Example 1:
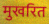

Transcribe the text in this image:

मुखरित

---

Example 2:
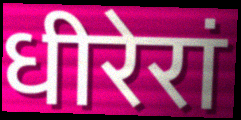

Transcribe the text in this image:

धीरेरां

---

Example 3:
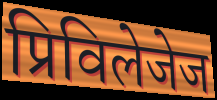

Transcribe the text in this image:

प्रिविलेजेज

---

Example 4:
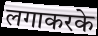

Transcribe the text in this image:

लगाकरके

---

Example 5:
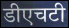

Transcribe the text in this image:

डीएचटी